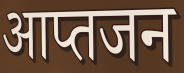
आप्तजन